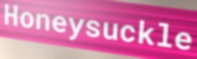
Honeysuckle